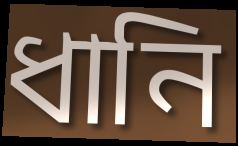
ধানি